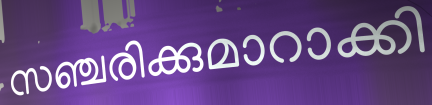
സഞ്ചരിക്കുമാറാക്കി